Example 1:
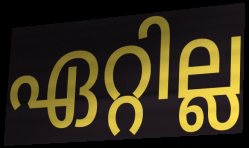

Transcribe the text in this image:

ഏറ്റില്ല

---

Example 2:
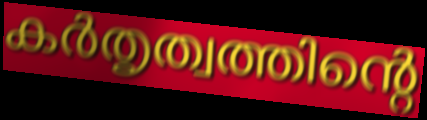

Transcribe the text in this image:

കർതൃത്വത്തിന്റെ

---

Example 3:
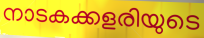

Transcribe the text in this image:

നാടകക്കളരിയുടെ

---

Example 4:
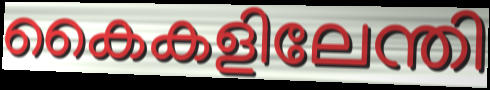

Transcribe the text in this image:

കൈകളിലേന്തി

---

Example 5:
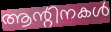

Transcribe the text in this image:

ആന്റിനകൾ